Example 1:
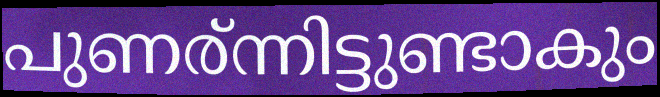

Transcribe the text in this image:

പുണര്ന്നിട്ടുണ്ടാകും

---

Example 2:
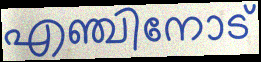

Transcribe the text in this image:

എഞ്ചിനോട്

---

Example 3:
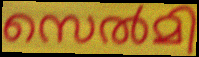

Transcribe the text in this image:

സെൽമി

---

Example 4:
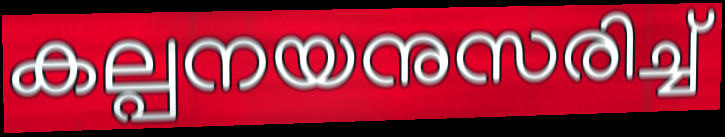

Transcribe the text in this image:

കല്പനയനുസരിച്ച്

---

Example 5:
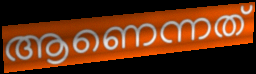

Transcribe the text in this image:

ആണെന്നത്